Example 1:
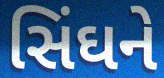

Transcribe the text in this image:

સિંઘને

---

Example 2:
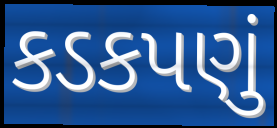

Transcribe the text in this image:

કડકપણું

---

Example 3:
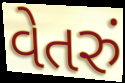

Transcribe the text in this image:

વેતરું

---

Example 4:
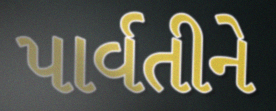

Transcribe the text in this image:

પાર્વતીને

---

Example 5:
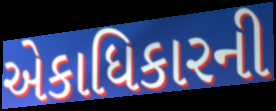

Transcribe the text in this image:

એકાધિકારની